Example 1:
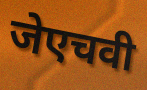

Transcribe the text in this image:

जेएचवी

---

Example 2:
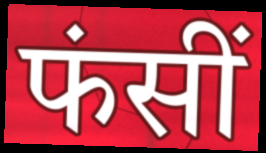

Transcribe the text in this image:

फंसीं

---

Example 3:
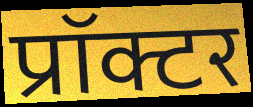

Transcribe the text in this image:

प्रॉक्टर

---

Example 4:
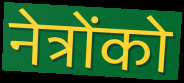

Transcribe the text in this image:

नेत्रोंको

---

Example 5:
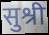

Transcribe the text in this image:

सुश्री